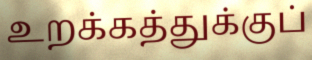
உறக்கத்துக்குப்